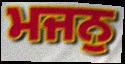
ਮਜਨੁ